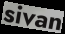
sivan